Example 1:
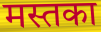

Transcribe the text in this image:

मस्तका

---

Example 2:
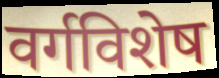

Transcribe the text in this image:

वर्गविशेष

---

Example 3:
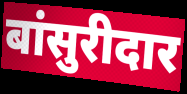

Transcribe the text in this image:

बांसुरीदार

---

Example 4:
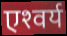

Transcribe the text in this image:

एश्वर्य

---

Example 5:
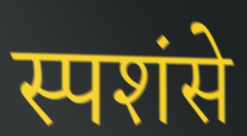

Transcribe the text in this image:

स्पशंसे